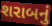
શરાબનું